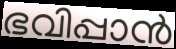
ഭവിപ്പാൻ